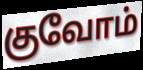
குவோம்